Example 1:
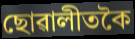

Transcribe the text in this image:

ছোৱালীতকৈ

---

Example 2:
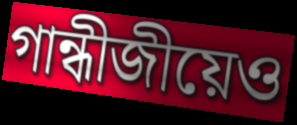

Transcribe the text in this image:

গান্ধীজীয়েও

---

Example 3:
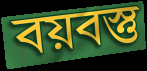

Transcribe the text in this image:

বয়বস্তু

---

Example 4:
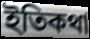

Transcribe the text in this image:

ইতিকথা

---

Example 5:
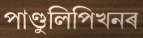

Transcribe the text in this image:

পাণ্ডুলিপিখনৰ